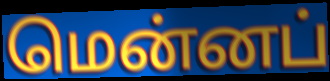
மென்னப்